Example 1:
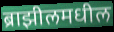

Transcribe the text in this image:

ब्राझीलमधील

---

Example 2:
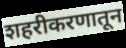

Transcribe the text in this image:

शहरीकरणातून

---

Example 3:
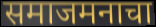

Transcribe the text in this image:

समाजमनाचा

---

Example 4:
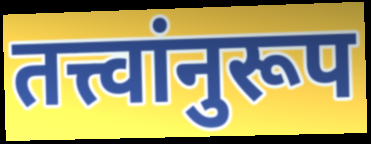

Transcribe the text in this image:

तत्त्वांनुरूप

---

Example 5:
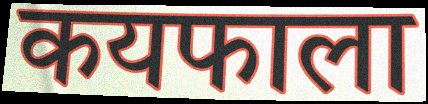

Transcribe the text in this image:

कयफाला